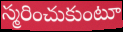
స్మరించుకుంటూ